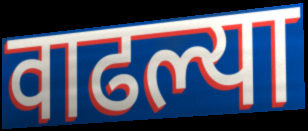
वाढल्या